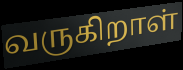
வருகிறாள்